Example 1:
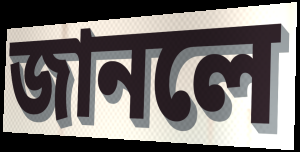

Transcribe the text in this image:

জানলে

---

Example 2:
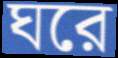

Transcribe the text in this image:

ঘরে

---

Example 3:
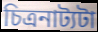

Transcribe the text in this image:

চিত্রনাট্যটা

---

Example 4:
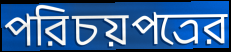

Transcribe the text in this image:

পরিচয়পত্রের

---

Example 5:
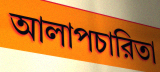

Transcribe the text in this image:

আলাপচারিতা